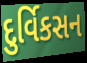
દુર્વિકસન